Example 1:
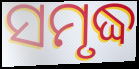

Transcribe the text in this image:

ସମୃଦ୍ଧ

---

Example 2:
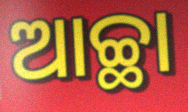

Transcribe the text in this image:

ଆଚ୍ଛା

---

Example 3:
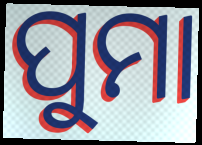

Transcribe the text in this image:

ପୁମା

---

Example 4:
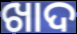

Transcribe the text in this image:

ଖାଦ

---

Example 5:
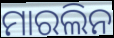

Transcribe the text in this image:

ମାରଲିନ